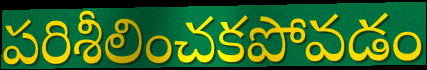
పరిశీలించకపోవడం